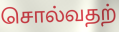
சொல்வதற்